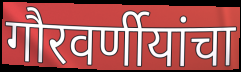
गौरवर्णीयांचा